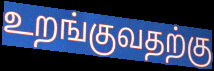
உறங்குவதற்கு